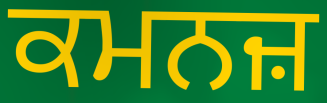
ਕਮਨਜ਼